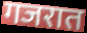
गजरात